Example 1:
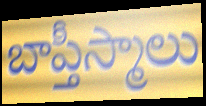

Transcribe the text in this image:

బాప్తీస్మాలు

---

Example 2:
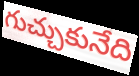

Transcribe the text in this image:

గుచ్చుకునేది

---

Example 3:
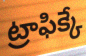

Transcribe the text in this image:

ట్రాఫిక్కే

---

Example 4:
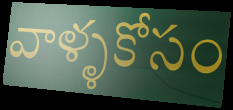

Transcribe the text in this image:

వాళ్ళకోసం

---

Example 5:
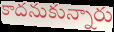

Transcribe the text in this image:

కాదనుకున్నారు